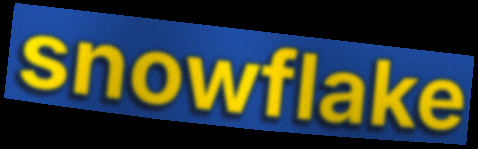
snowflake